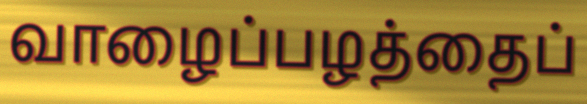
வாழைப்பழத்தைப்